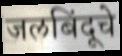
जलबिंदूचे